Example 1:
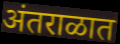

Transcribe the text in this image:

अंतराळात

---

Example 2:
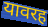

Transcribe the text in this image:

यावरह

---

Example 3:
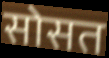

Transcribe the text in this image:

सोसत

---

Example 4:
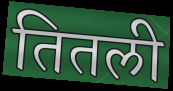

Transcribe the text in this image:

तितली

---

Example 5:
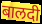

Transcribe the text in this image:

बालदी